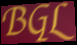
BGL